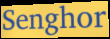
Senghor